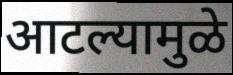
आटल्यामुळे